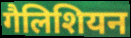
गैलिशियन